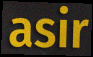
asir